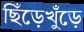
ছিঁড়েখুঁড়ে